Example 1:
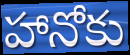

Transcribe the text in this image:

హానోకు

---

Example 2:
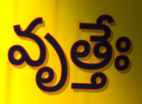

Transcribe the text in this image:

వృత్తేః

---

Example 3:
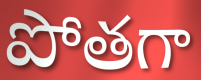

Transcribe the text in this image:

పోతగా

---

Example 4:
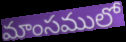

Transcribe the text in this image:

మాంసములో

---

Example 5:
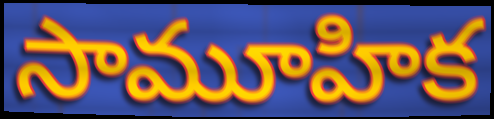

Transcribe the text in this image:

సామూహిక